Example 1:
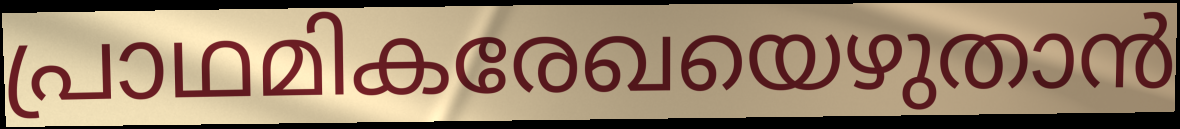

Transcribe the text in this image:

പ്രാഥമികരേഖയെഴുതാൻ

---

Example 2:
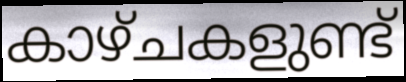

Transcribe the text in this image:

കാഴ്ചകളുണ്ട്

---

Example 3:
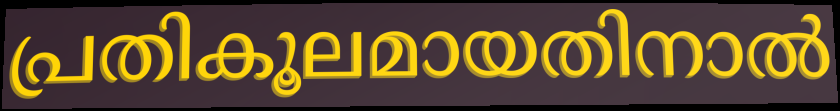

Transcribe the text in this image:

പ്രതികൂലമായതിനാൽ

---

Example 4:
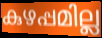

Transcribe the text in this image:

കുഴപ്പമില്ല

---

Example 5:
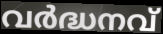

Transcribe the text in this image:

വർദ്ധനവ്